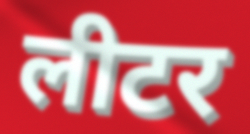
लीटर